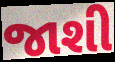
જાશી